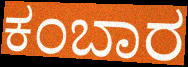
ಕಂಬಾರ